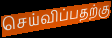
செய்விப்பதற்கு